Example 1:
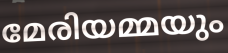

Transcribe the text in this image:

മേരിയമ്മയും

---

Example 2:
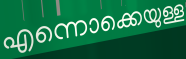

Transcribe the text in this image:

എന്നൊക്കെയുള്ള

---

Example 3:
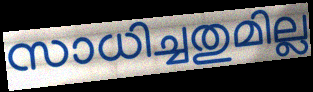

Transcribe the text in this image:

സാധിച്ചതുമില്ല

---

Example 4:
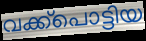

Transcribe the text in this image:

വക്ക്പൊട്ടിയ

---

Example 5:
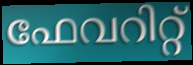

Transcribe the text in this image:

ഫേവറിറ്റ്